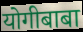
योगीबाबा